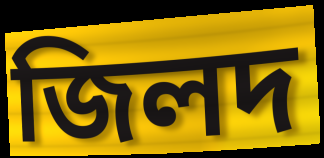
জিলদ